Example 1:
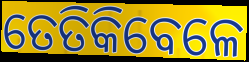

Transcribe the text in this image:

ତେତିକିବେଳେ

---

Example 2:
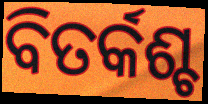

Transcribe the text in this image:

ବିତର୍କଶ୍ଚ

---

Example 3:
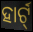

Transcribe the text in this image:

ହାର୍ଟ୍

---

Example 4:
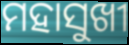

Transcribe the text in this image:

ମହାସୁଖୀ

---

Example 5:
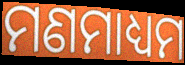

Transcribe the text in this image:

ମଣମାଧ୍ୟମ